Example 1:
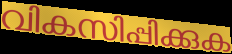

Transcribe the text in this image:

വികസിപ്പിക്കുക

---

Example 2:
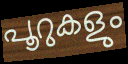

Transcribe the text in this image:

പൂറുകളും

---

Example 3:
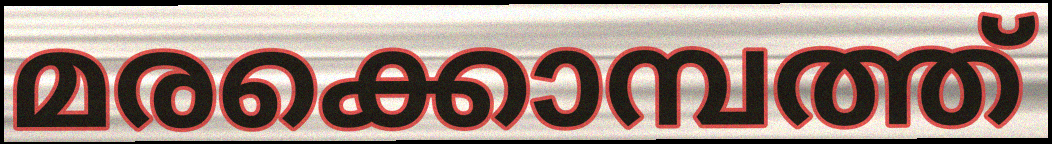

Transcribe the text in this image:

മരക്കൊമ്പത്ത്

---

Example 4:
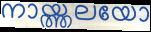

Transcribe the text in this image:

നായ്ത്തലയോ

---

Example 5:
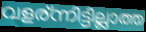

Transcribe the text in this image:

വളര്ന്നിട്ടില്ലാത്ത